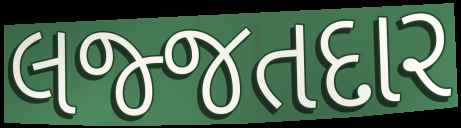
લજ્જતદાર